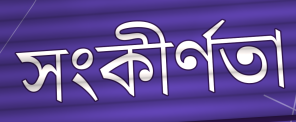
সংকীৰ্ণতা